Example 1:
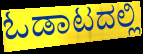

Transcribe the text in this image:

ಓಡಾಟದಲ್ಲಿ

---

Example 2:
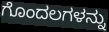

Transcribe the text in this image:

ಗೊಂದಲಗಳನ್ನು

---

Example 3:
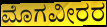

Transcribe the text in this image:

ಮೊಗವೀರರ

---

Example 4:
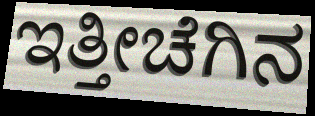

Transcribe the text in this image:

ಇತ್ತೀಚೆಗಿನ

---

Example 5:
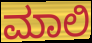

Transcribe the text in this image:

ಮಾಲಿ